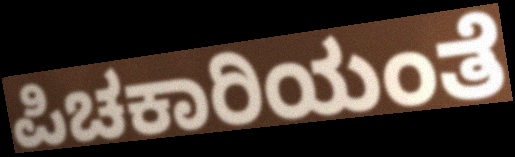
ಪಿಚಕಾರಿಯಂತೆ